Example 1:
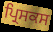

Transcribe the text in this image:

ਪ੍ਰਿਸਕਸ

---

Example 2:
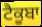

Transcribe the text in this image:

ਟੈਕੂਬਾ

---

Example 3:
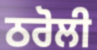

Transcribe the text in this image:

ਠਰੋਲੀ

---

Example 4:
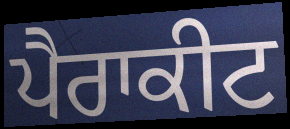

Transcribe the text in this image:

ਪੈਰਾਕੀਟ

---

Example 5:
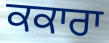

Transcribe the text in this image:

ਕਕਾਰਾ